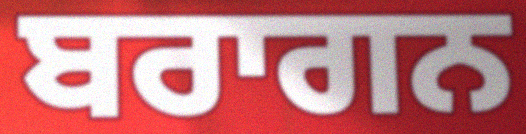
ਬਰਾਗਨ